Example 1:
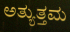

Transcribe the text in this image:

ಅತ್ಯುತ್ತಮ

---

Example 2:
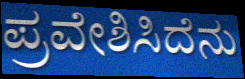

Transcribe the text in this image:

ಪ್ರವೇಶಿಸಿದೆನು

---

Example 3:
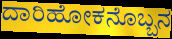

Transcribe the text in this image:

ದಾರಿಹೋಕನೊಬ್ಬನ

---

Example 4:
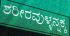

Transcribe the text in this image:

ಶರೀರವುಳ್ಳನ್ನಕ್ಕ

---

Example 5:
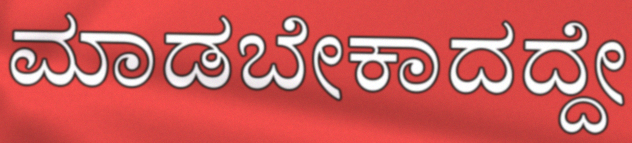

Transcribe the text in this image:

ಮಾಡಬೇಕಾದದ್ದೇ